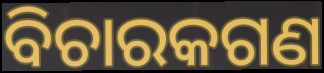
ବିଚାରକଗଣ